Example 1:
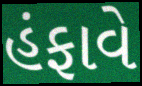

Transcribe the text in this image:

હંફાવે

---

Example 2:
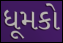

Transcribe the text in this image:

ધૂમકો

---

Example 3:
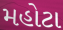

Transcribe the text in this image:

મહોટા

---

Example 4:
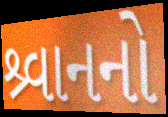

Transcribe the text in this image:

શ્ર્વાનનો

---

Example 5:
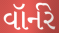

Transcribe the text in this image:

વૉર્નરે